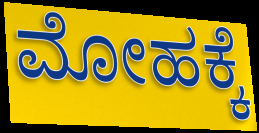
ಮೋಹಕ್ಕೆ